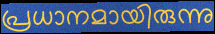
പ്രധാനമായിരുന്നു